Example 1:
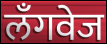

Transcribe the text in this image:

लॅंगवेज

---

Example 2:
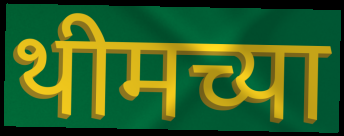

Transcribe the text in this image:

थीमच्या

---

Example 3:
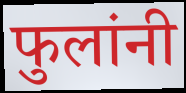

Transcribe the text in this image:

फुलांनी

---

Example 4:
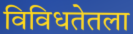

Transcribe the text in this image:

विविधतेतला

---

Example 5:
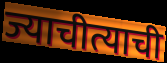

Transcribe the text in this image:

ज्याचीत्याची